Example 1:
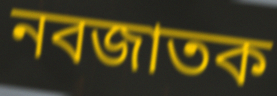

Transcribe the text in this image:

নবজাতক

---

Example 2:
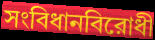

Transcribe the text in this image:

সংবিধানবিরোধী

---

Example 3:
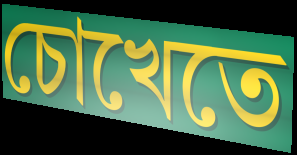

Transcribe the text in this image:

চোখেতে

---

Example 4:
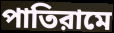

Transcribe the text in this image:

পাতিরামে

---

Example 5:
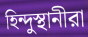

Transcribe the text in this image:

হিন্দুস্থানীরা